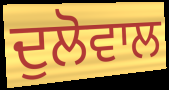
ਦੁਲੋਵਾਲ